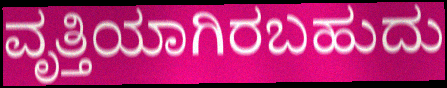
ವೃತ್ತಿಯಾಗಿರಬಹುದು